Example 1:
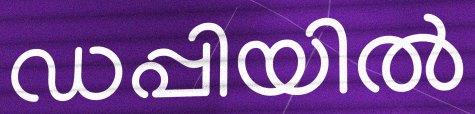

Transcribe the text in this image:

ഡപ്പിയിൽ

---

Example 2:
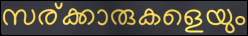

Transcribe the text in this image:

സര്ക്കാരുകളെയും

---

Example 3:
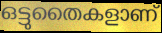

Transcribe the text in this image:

ഒട്ടുതൈകളാണ്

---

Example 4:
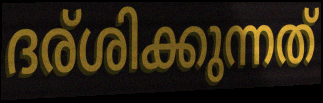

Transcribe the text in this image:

ദര്ശിക്കുന്നത്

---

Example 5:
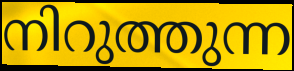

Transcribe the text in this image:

നിറുത്തുന്ന